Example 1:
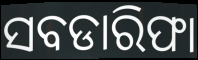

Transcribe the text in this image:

ସବଡାରିଫା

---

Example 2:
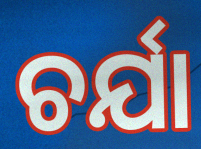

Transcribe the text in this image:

ଚର୍ଯା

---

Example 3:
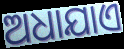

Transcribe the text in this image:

ଅଧାଯାଏ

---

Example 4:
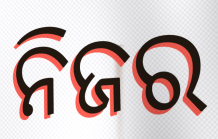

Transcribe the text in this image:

ନିଜର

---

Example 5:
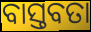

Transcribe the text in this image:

ବାସ୍ତବତା